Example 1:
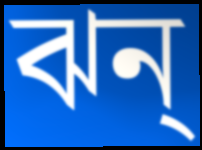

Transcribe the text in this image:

ঝন্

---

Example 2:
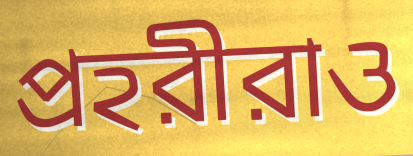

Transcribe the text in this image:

প্রহরীরাও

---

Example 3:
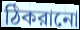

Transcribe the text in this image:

ঠিকরানো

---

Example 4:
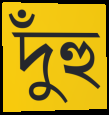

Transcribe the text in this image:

দুঁহু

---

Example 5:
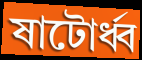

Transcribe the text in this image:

ষাটোর্ধ্ব